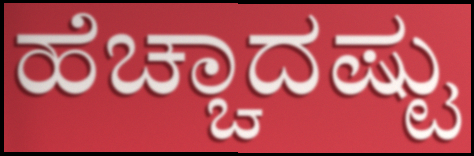
ಹೆಚ್ಚಾದಷ್ಟು